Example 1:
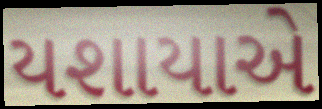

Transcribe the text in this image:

યશાયાએ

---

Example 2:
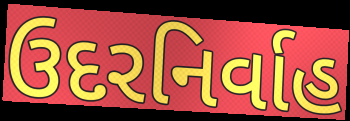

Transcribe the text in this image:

ઉદરનિર્વાહ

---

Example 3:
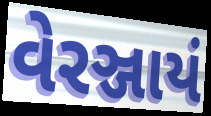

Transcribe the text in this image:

વેરઞ્જાયં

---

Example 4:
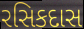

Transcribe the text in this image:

રસિકદાસ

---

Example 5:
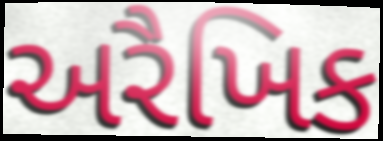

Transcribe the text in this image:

અરૈખિક